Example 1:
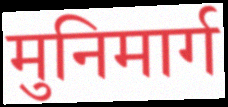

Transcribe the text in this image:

मुनिमार्ग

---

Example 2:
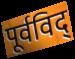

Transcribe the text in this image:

पूर्वविद्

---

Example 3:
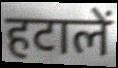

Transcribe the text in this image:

हटालें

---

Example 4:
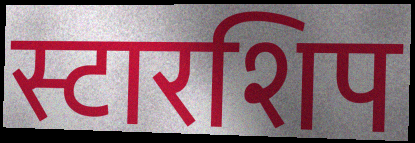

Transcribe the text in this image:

स्टारशिप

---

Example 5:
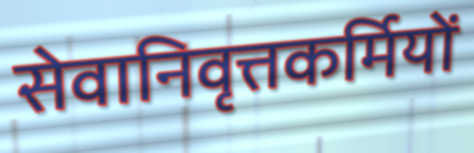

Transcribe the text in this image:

सेवानिवृत्तकर्मियों